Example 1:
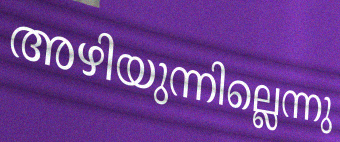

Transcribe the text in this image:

അഴിയുന്നില്ലെന്നു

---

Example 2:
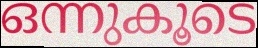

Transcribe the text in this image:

ഒന്നുകൂടെ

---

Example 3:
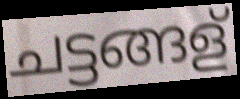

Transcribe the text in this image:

ചട്ടങ്ങള്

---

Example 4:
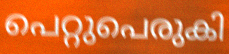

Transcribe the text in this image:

പെറ്റുപെരുകി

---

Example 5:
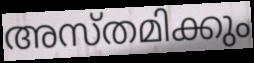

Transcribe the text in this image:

അസ്തമിക്കും